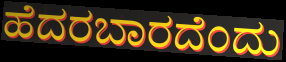
ಹೆದರಬಾರದೆಂದು